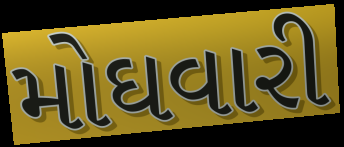
મોઘવારી